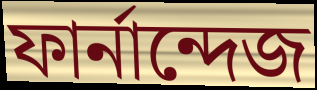
ফার্নান্দেজ